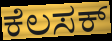
ಕೆಲಸಕ್